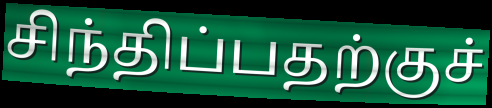
சிந்திப்பதற்குச்